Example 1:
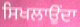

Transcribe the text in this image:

ਸਿਖਲਾਉਂਦਾ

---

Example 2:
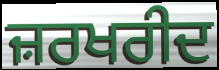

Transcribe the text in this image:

ਜ਼ਰਖਰੀਦ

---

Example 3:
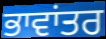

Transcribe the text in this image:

ਭਾਵਾਂਤਰ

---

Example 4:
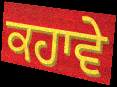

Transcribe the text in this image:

ਕਹਾਵੇ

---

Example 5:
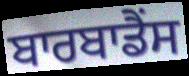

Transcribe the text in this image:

ਬਾਰਬਾਡੈਂਸ